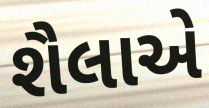
શૈલાએ